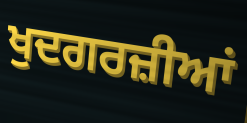
ਖੁਦਗਰਜ਼ੀਆਂ